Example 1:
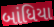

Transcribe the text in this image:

બાંધિયા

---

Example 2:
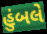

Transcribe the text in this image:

હુંબલે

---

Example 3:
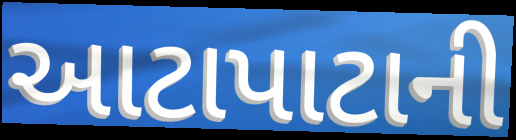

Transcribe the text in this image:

આટાપાટાની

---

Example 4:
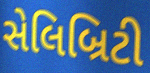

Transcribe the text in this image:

સેલિબ્રિટી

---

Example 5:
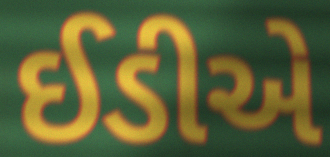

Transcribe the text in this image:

ઈડીએ